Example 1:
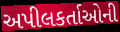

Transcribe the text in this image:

અપીલકર્તાઓની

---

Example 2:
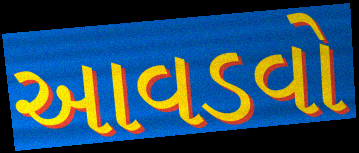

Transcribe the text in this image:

આવડવો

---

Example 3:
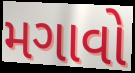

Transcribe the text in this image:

મગાવો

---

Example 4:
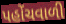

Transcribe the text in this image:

પહોંચવાળી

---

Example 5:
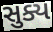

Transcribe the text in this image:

સુક્ય